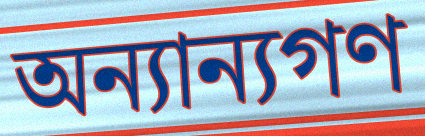
অন্যান্যগণ